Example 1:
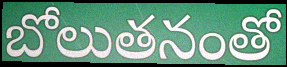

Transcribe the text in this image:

బోలుతనంతో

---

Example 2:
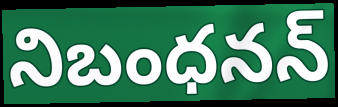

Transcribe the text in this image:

నిబంధనన్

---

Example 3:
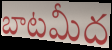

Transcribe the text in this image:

బాటమీద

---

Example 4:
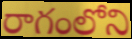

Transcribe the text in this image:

రాగంలోని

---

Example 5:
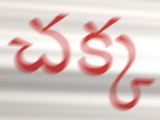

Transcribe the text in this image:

చక్క